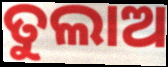
ତୁଲାଅ